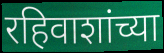
रहिवाशांच्या